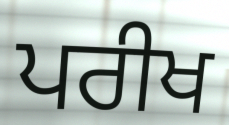
ਪਰੀਖ